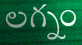
లగ్నం